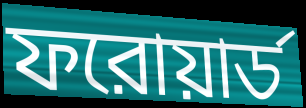
ফরোয়ার্ড